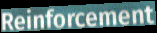
Reinforcement